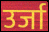
उर्जा